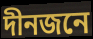
দীনজনে